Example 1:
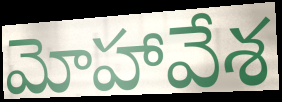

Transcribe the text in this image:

మోహావేశ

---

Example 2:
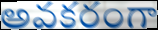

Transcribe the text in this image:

అవకరంగా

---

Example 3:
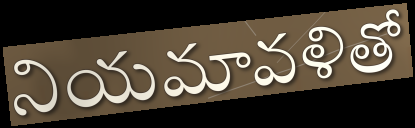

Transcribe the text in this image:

నియమావళితో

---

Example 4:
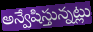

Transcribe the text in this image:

అన్వేషిస్తున్నట్లు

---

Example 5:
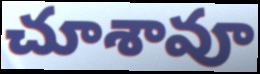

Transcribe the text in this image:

చూశావూ